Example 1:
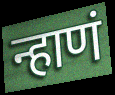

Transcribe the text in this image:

न्हाणं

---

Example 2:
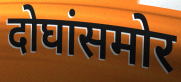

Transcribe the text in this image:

दोघांसमोर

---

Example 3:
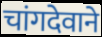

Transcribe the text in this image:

चांगदेवाने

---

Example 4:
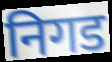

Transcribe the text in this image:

निगड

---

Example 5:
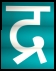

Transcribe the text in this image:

द्र